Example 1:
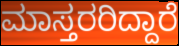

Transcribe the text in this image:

ಮಾಸ್ತರರಿದ್ದಾರೆ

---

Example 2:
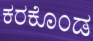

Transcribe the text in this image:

ಕರಕೊಂಡ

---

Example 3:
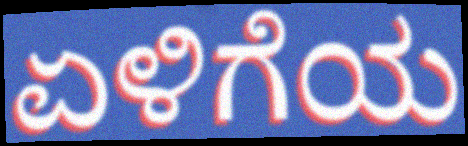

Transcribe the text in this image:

ಏಳಿಗೆಯ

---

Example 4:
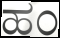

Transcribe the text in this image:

ಹಂ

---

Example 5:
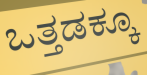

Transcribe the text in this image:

ಒತ್ತಡಕ್ಕೂ